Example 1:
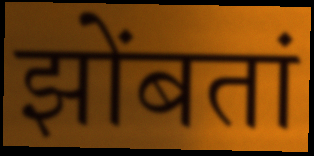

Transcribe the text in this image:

झोंबतां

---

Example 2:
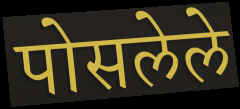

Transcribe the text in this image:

पोसलेले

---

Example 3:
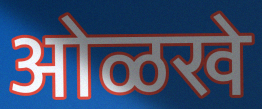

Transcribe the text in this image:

ओळखे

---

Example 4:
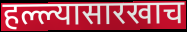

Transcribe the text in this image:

हल्ल्यासारखाच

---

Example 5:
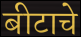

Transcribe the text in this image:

बीटाचे